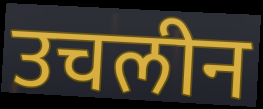
उचलीन